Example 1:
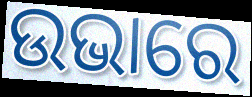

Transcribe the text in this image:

ଉଭାରେ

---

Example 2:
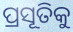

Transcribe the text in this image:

ପ୍ରସୂତିକୁ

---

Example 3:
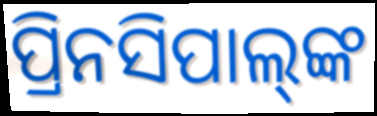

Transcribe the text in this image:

ପ୍ରିନସିପାଲ୍‍ଙ୍କ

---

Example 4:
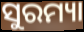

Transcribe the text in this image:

ସୁରମ୍ୟା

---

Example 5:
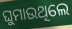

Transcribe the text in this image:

ଘୁମାଉଥିଲେ